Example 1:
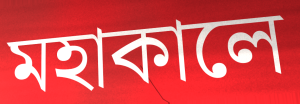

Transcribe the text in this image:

মহাকালে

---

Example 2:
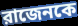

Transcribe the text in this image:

রাজেনকে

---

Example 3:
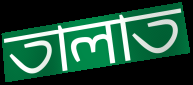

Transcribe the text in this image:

তালাত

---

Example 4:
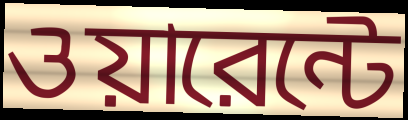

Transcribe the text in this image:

ওয়ারেন্টে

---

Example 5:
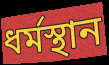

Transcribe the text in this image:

ধর্মস্থান